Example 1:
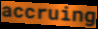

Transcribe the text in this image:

accruing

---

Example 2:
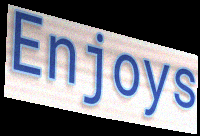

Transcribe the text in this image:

Enjoys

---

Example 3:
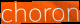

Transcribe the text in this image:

choron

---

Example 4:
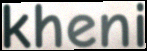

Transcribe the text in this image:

kheni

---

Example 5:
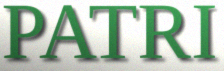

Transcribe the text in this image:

PATRI